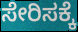
ಸೇರಿಸಕ್ಕೆ